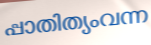
പ്പാതിത്യംവന്ന